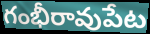
గంభీరావుపేట